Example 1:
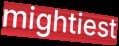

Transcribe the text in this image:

mightiest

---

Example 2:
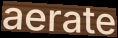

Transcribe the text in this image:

aerate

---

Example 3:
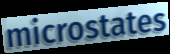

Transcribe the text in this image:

microstates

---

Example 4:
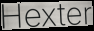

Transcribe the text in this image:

Hexter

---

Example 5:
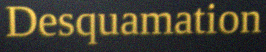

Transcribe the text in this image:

Desquamation